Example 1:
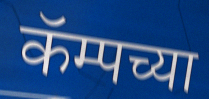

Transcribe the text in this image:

कॅम्पच्या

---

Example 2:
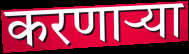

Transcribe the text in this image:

करणार्‍या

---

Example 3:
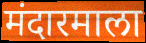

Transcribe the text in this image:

मंदारमाला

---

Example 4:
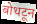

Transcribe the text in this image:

बोथटून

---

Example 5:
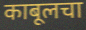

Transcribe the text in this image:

काबूलचा